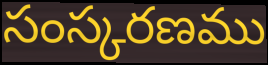
సంస్కరణము